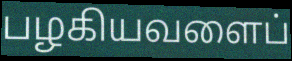
பழகியவளைப்